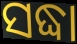
ସଦ୍ଧା